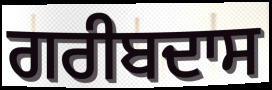
ਗਰੀਬਦਾਸ